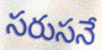
సరుసనే